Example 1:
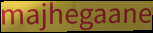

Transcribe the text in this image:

majhegaane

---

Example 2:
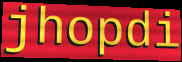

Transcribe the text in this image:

jhopdi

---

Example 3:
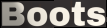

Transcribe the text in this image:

Boots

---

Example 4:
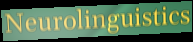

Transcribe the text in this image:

Neurolinguistics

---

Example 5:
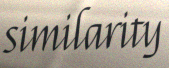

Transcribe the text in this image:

similarity